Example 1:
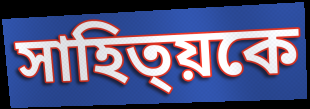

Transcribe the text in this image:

সাহিত্য়কে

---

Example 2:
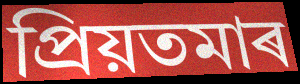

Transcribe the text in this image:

প্ৰিয়তমাৰ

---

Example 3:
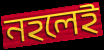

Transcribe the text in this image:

নহলেই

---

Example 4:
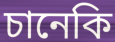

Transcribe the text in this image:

চানেকি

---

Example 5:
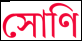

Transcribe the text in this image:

সোণি